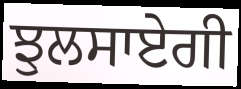
ਝੁਲਸਾਏਗੀ